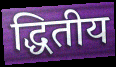
द्धितीय